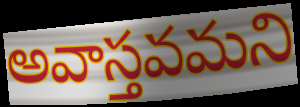
అవాస్తవమని